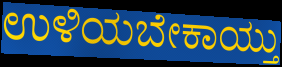
ಉಳಿಯಬೇಕಾಯ್ತು